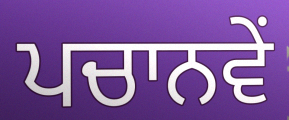
ਪਚਾਨਵੇਂ